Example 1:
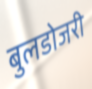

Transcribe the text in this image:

बुलडोजरी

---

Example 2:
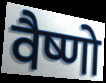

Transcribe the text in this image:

वैष्‍णो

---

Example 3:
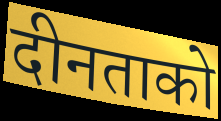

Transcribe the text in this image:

दीनताको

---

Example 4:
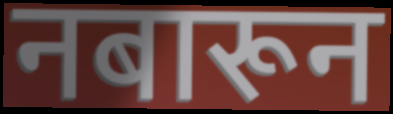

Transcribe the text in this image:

नबारून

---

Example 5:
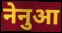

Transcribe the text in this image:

नेनुआ